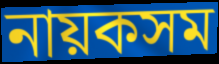
নায়কসম